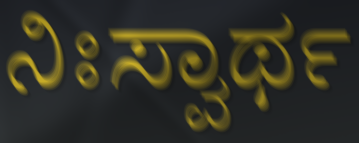
ನಿಃಸ್ವಾರ್ಥ